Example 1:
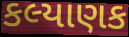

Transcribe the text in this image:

કલ્યાણક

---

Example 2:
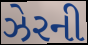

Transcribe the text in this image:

ઝેરની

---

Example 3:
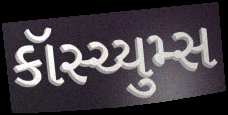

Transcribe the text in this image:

કૉસ્ચ્યુમ્સ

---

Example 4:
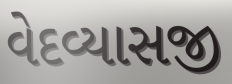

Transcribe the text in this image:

વેદવ્યાસજી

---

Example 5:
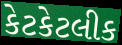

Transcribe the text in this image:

કેટકેટલીક